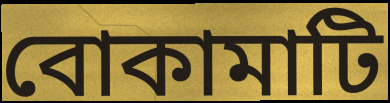
বোকামাটি